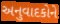
અનુવાદકોને